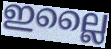
ഇല്ലൈ